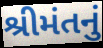
શ્રીમંતનું